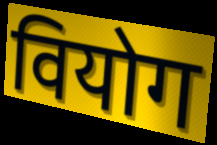
वियोग